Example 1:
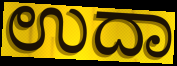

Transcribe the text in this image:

ಉದಾ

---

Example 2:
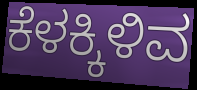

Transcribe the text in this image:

ಕೆಳಕ್ಕಿಳಿವ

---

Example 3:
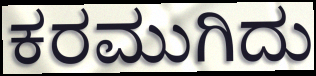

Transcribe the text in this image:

ಕರಮುಗಿದು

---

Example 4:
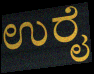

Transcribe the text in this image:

ಉರೈ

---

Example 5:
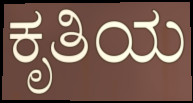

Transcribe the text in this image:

ಕೃತಿಯ